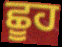
ਛੂਹ